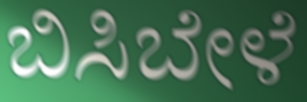
ಬಿಸಿಬೇಳೆ